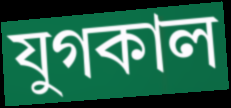
যুগকাল